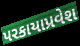
પરકાયાપ્રવેશ